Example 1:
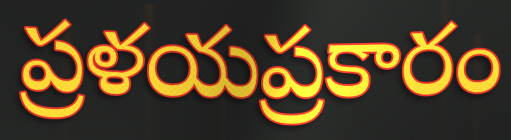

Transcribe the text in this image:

ప్రళయప్రకారం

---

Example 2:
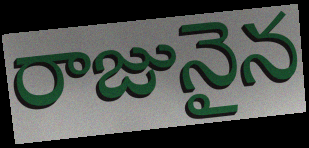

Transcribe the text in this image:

రాజునైన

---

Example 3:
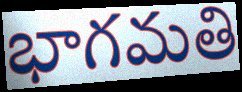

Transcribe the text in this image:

భాగమతి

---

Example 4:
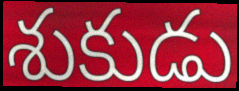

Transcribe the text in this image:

శుకుడు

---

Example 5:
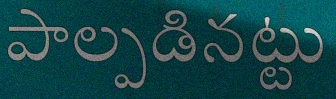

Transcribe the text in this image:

పాల్పడినట్టు